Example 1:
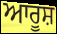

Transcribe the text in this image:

ਆਰੂਸ਼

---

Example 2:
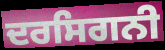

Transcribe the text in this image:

ਦਰਸਿਗਨੀ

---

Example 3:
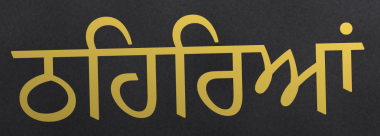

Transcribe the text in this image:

ਠਹਿਰਿਆਂ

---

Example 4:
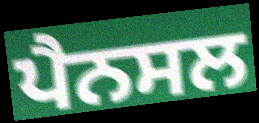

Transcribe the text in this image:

ਪੈਨਸਲ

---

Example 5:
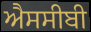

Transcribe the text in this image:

ਐਸਸੀਬੀ